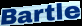
Bartle